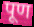
पूण